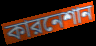
কারনেশান